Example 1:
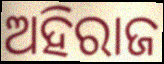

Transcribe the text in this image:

ଅହିରାଜ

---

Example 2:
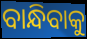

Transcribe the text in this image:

ବାନ୍ଧିବାକୁ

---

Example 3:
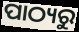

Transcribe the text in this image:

ପାଠ୍ୟରୁ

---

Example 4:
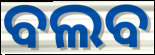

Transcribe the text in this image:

ବଲବ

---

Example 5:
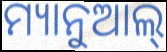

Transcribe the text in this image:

ମ୍ୟାନୁଆଲ୍